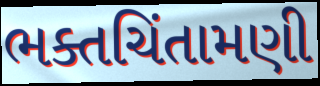
ભક્તચિંતામણી